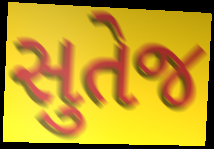
સુતેજ